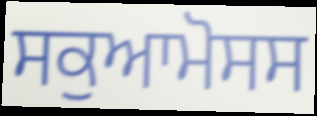
ਸਕੁਆਮੋਸਸ